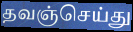
தவஞ்செய்து